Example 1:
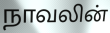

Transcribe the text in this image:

நாவலின்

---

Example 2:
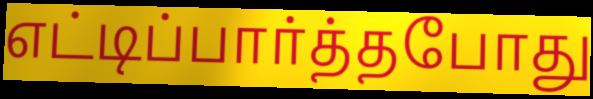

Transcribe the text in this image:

எட்டிப்பார்த்தபோது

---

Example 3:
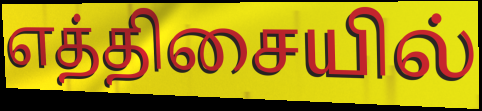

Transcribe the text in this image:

எத்திசையில்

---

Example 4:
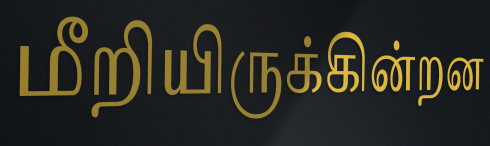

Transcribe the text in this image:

மீறியிருக்கின்றன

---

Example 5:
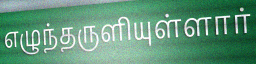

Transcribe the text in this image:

எழுந்தருளியுள்ளார்